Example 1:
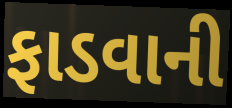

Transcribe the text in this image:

ફાડવાની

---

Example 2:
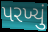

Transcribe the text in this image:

પરખ્યું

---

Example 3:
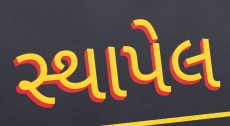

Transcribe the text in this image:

સ્થાપેલ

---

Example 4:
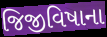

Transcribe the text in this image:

જિજીવિષાના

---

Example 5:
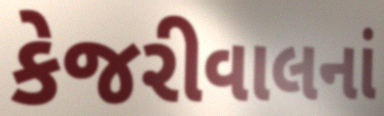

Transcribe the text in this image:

કેજરીવાલનાં